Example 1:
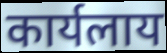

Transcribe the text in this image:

कार्यलाय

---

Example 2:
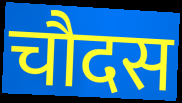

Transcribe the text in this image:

चौदस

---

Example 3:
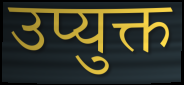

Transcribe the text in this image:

उप्युक्त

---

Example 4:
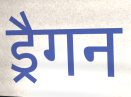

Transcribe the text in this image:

ड्रैगन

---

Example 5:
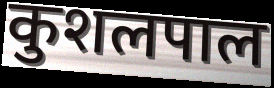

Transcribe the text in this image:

कुशलपाल